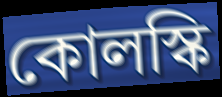
কোলস্কি